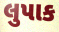
લુપાક